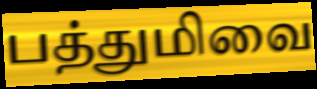
பத்துமிவை